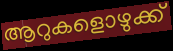
ആറുകളൊഴുക്ക്